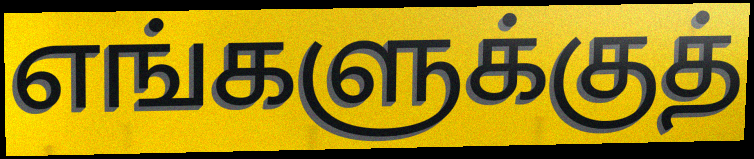
எங்களுக்குத்